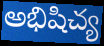
అభిషిచ్య